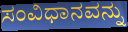
ಸಂವಿಧಾನವನ್ನು